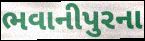
ભવાનીપુરના